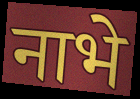
नाभे